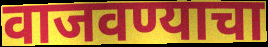
वाजवण्याचा